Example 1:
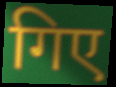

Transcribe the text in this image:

गिए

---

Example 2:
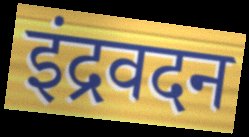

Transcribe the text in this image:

इंद्रवदन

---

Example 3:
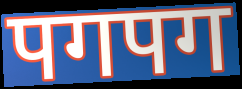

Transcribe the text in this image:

पगपग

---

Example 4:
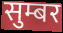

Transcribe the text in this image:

सुम्बर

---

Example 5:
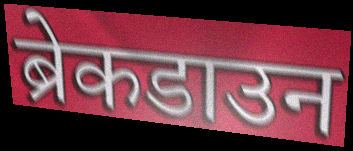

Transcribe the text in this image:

ब्रेकडाउन